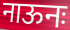
नाऊनः